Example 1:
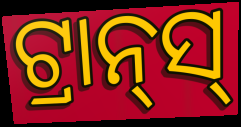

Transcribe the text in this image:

ଟ୍ରାନ୍‍ସ୍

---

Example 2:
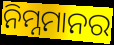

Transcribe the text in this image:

ନିମ୍ନମାନର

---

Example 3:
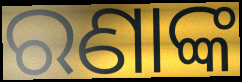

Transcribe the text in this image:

ରଣାଙ୍କ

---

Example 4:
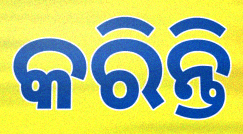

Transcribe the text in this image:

କରିନ୍ତି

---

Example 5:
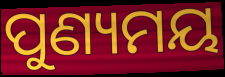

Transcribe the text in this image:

ପୁଣ୍ୟମୟ